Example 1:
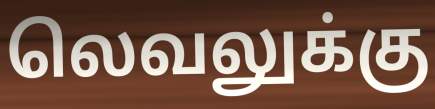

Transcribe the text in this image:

லெவலுக்கு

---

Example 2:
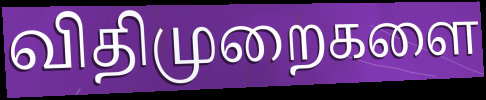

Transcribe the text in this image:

விதிமுறைகளை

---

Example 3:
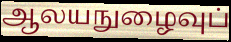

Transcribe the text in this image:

ஆலயநுழைவுப்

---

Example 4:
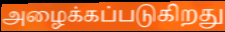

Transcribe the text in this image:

அழைக்கப்படுகிறது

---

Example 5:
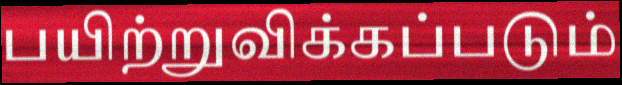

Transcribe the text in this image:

பயிற்றுவிக்கப்படும்